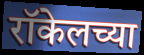
रॉकेलच्या